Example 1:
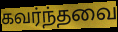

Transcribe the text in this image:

கவர்ந்தவை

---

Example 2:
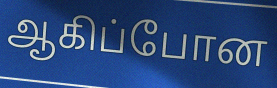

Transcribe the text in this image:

ஆகிப்போன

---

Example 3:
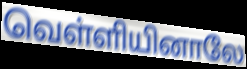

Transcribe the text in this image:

வெள்ளியினாலே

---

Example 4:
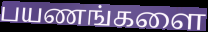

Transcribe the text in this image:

பயணங்களை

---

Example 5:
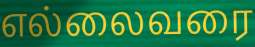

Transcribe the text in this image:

எல்லைவரை